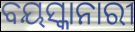
ବୟସ୍କାନାରୀ